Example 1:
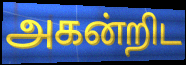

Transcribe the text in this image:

அகன்றிட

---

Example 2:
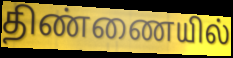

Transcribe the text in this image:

திண்ணையில்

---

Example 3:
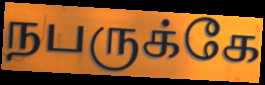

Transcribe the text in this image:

நபருக்கே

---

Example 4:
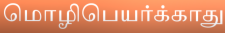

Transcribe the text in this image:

மொழிபெயர்க்காது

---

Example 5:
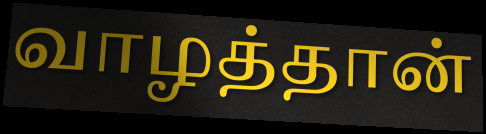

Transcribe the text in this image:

வாழத்தான்